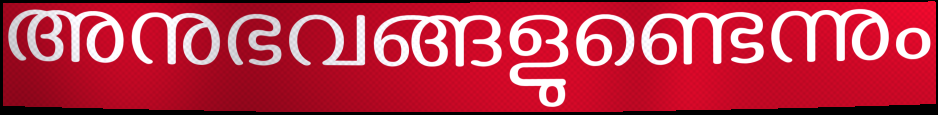
അനുഭവങ്ങളുണ്ടെന്നും